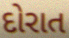
દોરાત